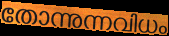
തോന്നുന്നവിധം